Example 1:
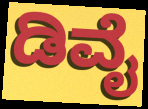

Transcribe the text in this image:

ಡಿವೈ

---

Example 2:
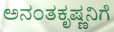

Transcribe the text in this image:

ಅನಂತಕೃಷ್ಣನಿಗೆ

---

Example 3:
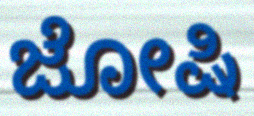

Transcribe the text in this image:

ಜೋಷಿ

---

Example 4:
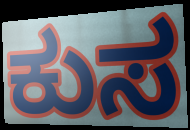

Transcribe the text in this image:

ಕುಸ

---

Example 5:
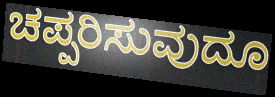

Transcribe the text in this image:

ಚಪ್ಪರಿಸುವುದೂ